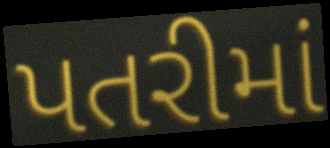
પતરીમાં